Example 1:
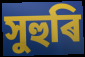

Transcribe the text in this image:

সুহুৰি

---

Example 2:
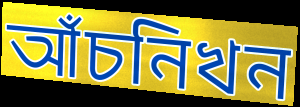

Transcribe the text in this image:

আঁচনিখন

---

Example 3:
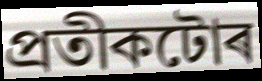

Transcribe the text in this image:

প্ৰতীকটোৰ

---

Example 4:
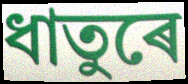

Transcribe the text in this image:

ধাতুৰে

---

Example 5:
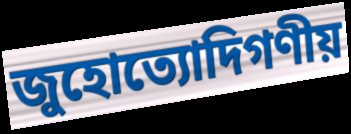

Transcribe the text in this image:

জুহোত্যোদিগণীয়